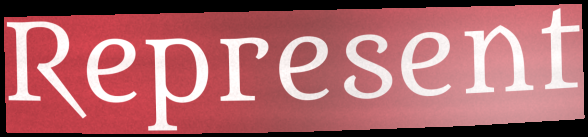
Represent